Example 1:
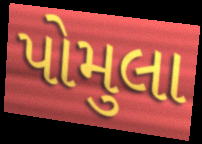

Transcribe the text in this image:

પોમુલા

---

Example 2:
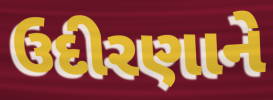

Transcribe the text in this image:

ઉદીરણાને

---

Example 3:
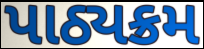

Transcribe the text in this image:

પાઠ્યક્રમ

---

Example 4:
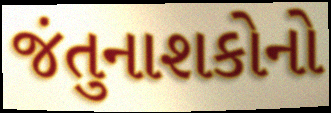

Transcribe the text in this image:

જંતુનાશકોનો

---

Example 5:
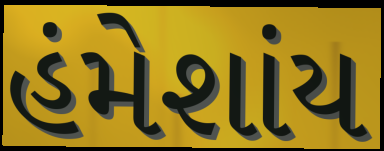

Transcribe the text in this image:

હંમેશાંય